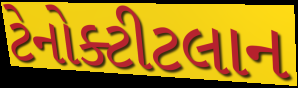
ટેનોક્ટીટલાન